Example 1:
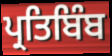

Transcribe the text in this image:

ਪ੍ਰਤਿਬਿੰਬ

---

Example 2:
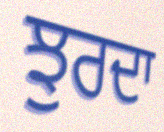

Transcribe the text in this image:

ਝੁਰਦਾ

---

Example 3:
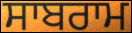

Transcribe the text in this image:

ਸਾਬਰਾਮ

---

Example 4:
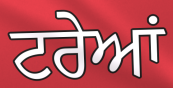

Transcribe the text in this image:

ਟਰੇਆਂ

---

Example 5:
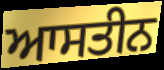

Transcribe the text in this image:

ਆਸਤੀਨ